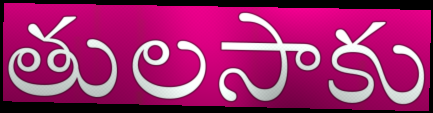
తులసాకు